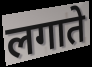
लगाते